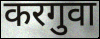
करगुवा